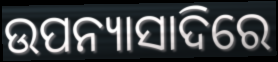
ଉପନ୍ୟାସାଦିରେ